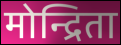
मोन्द्रिता